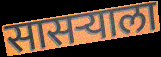
सासऱ्याला